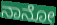
ನಾನೋ